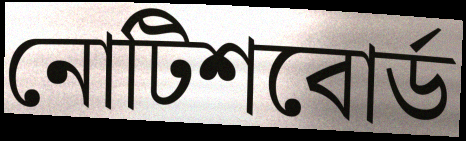
নোটিশবোর্ড